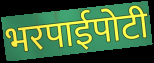
भरपाईपोटी